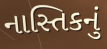
નાસ્તિકનું